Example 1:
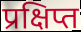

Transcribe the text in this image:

प्रक्षिप्त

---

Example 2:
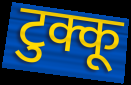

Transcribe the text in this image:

टुक्कू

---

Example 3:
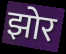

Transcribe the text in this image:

झोर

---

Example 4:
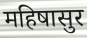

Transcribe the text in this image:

महिषासुर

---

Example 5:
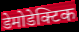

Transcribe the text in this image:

डेमोडेक्टिक